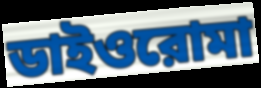
ডাইওরোমা